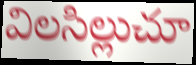
విలసిల్లుచూ